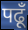
पढूँ